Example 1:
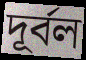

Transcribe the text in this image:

দূৰ্বল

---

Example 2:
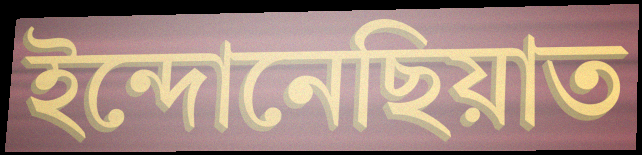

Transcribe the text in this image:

ইন্দোনেছিয়াত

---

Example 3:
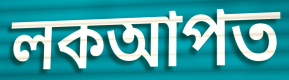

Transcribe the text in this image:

লকআপত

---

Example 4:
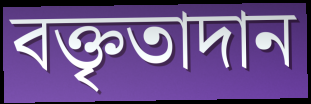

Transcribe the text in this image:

বক্তৃতাদান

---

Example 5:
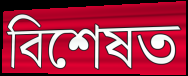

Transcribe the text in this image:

বিশেষত